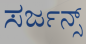
ಸರ್ಜನ್ಸ್